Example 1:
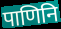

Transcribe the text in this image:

पाणिनि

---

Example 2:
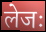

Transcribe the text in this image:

लेजः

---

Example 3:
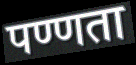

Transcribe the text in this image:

पण्णता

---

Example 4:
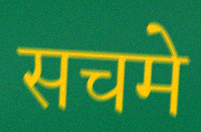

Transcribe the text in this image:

सचमे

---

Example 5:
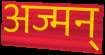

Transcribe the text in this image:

अज्मन्